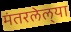
मंतरलेल्या